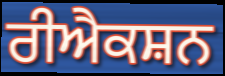
ਰੀਐਕਸ਼ਨ